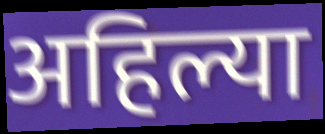
अहिल्या